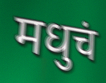
मधुचं